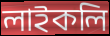
লাইকলি